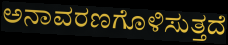
ಅನಾವರಣಗೊಳಿಸುತ್ತದೆ